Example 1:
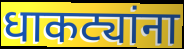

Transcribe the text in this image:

धाकट्यांना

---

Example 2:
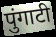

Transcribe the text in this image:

पुंगाटी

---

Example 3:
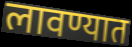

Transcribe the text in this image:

लावण्यात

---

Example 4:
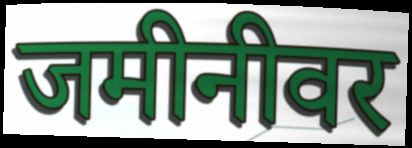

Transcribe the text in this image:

जमीनीवर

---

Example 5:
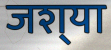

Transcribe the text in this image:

जश्या